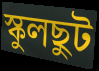
স্কুলছুট